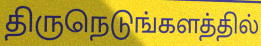
திருநெடுங்களத்தில்